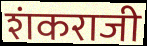
शंकराजी